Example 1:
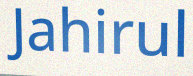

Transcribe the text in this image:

Jahirul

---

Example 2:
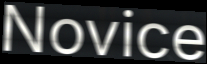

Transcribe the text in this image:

Novice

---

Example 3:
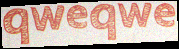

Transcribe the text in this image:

qweqwe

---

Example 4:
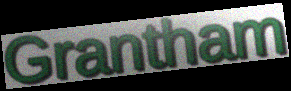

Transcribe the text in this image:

Grantham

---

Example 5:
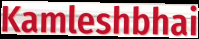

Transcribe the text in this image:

Kamleshbhai